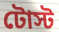
টোস্ট